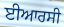
ਈਆਰਸੀ